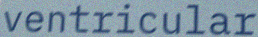
ventricular